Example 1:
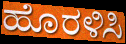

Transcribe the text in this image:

ಹೊರಳಿಸಿ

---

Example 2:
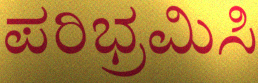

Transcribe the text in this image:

ಪರಿಭ್ರಮಿಸಿ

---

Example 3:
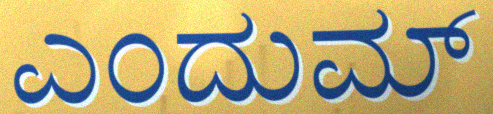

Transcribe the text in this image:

ಎಂದುಮ್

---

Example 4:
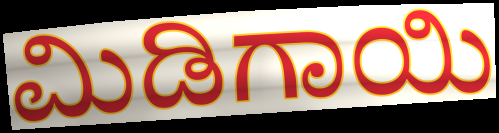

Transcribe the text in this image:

ಮಿಡಿಗಾಯಿ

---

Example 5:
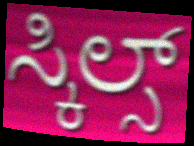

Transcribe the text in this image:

ಸ್ಕಿಲ್ಸ್